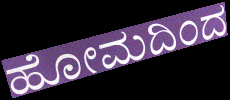
ಹೋಮದಿಂದ